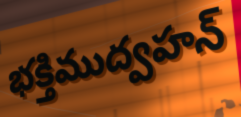
భక్తిముద్వహన్